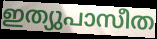
ഇത്യുപാസീത